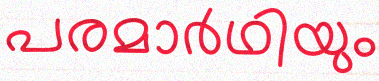
പരമാർഥിയും